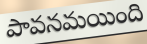
పావనమయింది